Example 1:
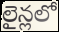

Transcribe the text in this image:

లైన్లలో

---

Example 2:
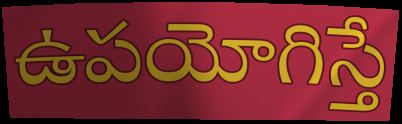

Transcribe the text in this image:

ఉపయోగిస్తే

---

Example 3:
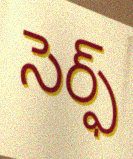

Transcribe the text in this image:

సెర్ఫ్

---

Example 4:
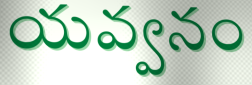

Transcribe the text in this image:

యవ్వనం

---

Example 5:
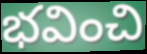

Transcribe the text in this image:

భవించి